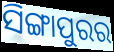
ସିଙ୍ଗାପୁରର